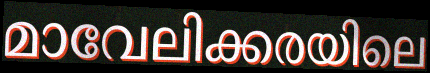
മാവേലിക്കരയിലെ